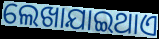
ଲେଖାଯାଇଥାଏ